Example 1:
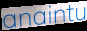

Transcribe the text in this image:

anaintu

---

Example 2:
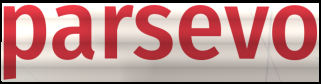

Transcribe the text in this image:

parsevo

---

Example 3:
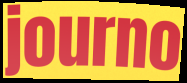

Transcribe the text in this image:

journo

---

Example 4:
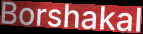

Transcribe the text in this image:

Borshakal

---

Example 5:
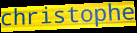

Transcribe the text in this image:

christophe